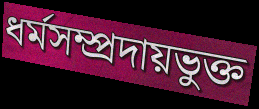
ধর্মসম্প্রদায়ভুক্ত